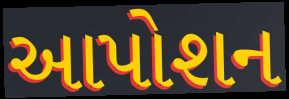
આપોશન